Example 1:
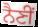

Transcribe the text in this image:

ਨੈਣੀਂ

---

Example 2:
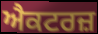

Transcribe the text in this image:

ਐਕਟਰਜ਼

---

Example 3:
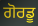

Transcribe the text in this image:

ਗੋਰਡੂ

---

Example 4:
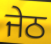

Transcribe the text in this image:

ਜੇਠ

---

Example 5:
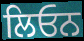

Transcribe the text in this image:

ਲਿਓਨ